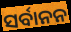
ସର୍ବାନନ